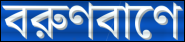
বরুণবাণে